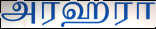
அரஹரா